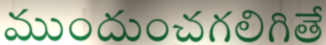
ముందుంచగలిగితే